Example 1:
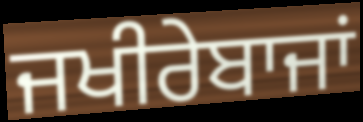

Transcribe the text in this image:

ਜਖੀਰੇਬਾਜਾਂ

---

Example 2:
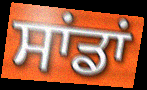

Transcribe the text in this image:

ਸਾਂਡਾਂ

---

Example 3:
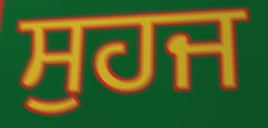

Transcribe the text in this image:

ਸੁਹਜ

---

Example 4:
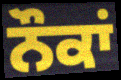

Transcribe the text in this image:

ਨੌਕਾਂ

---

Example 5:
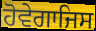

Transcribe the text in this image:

ਹੋਵੇਗਾਜਿਸ